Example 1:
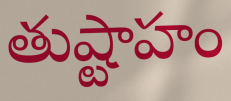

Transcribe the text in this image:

తుష్టాహం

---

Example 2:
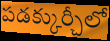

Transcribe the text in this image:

పడక్కుర్చీలో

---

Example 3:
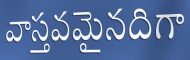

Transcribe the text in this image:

వాస్తవమైనదిగా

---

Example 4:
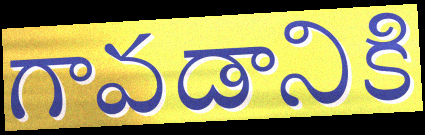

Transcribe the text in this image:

గావడానికి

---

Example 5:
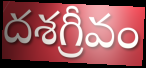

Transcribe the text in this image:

దశగ్రీవం